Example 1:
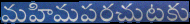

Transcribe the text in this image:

మహిమపరచుటకు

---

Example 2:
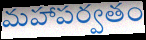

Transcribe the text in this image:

మహాపర్వతం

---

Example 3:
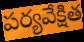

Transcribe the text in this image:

పర్యవేక్షిత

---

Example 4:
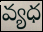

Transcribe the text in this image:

వ్యధ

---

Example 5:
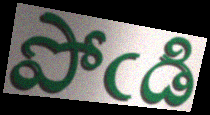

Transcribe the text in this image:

పోఁడి